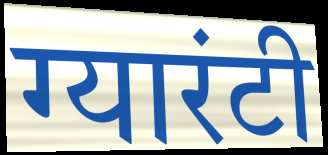
ग्‍यारंटी